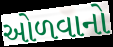
ઓળવાનો